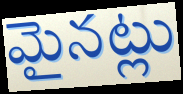
మైనట్లు